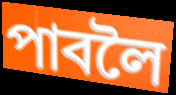
পাবলৈ